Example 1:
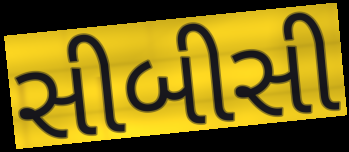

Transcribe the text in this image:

સીબીસી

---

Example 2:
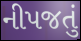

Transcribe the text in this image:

નીપજતું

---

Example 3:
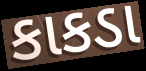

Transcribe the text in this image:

કાકડા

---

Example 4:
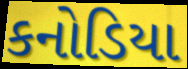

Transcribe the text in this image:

કનોડિયા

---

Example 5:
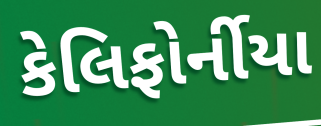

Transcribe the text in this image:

કેલિફોર્નીયા